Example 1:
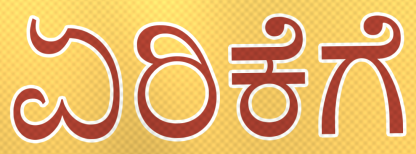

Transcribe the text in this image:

ಏರಿಕೆಗೆ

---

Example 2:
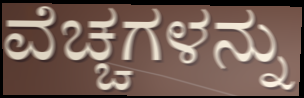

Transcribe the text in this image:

ವೆಚ್ಚಗಳನ್ನು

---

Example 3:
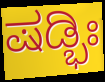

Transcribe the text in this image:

ಷಡ್ಭಿಃ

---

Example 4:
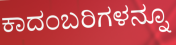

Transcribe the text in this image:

ಕಾದಂಬರಿಗಳನ್ನೂ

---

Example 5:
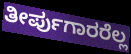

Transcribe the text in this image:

ತೀರ್ಪುಗಾರರೆಲ್ಲ